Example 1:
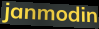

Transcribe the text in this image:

janmodin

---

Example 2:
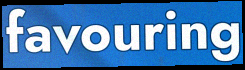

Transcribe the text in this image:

favouring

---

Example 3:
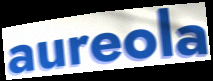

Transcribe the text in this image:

aureola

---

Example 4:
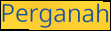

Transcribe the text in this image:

Perganah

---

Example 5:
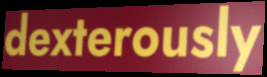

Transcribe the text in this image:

dexterously